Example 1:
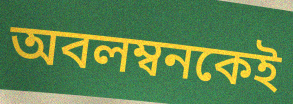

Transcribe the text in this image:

অবলম্বনকেই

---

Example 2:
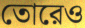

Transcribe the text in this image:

তোরেও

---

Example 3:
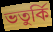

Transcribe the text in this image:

ভতুর্কি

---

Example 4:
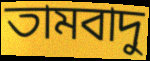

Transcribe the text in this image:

তামবাদু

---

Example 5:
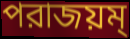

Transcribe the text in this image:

পরাজয়ম্